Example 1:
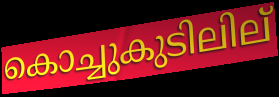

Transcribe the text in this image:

കൊച്ചുകുടിലില്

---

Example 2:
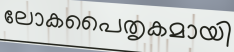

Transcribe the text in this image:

ലോകപൈതൃകമായി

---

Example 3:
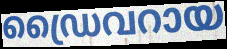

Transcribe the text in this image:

ഡ്രൈവറായ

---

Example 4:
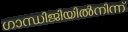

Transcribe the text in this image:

ഗാന്ധിജിയിൽനിന്ന്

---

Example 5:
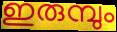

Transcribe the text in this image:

ഇരുമ്പും